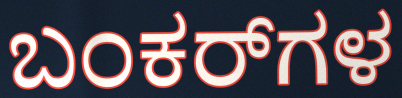
ಬಂಕರ್‌ಗಳ